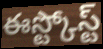
ఈస్ట్కోస్ట్